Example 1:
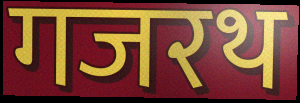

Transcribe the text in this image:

गजरथ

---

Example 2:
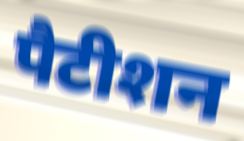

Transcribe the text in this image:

पैटीशन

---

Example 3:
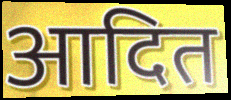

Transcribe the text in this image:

आदित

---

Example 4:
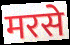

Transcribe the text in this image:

मरसे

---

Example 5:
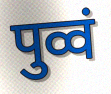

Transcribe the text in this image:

पुव्वं